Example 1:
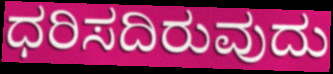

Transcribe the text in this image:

ಧರಿಸದಿರುವುದು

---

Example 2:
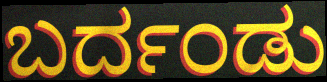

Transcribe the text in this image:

ಬರ್ದಂಡು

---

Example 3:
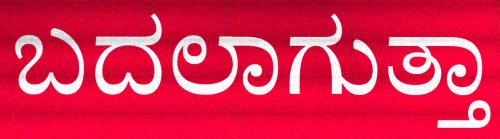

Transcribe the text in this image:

ಬದಲಾಗುತ್ತಾ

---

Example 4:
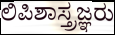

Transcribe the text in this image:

ಲಿಪಿಶಾಸ್ತ್ರಜ್ಞರು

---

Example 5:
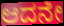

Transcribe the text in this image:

ಆದನೇ